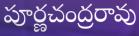
పూర్ణచంద్రరావు